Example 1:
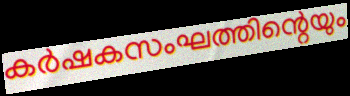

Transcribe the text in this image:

കർഷകസംഘത്തിന്റെയും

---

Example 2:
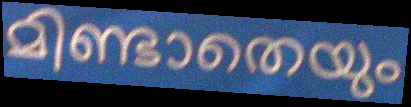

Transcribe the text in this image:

മിണ്ടാതെയും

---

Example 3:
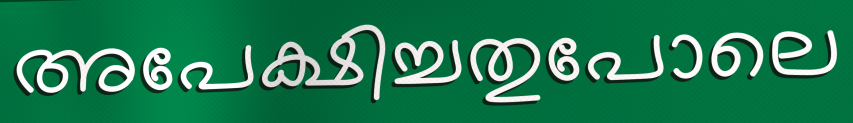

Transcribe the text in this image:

അപേക്ഷിച്ചതുപോലെ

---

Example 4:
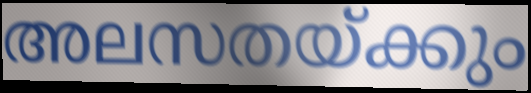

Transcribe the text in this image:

അലസതയ്ക്കും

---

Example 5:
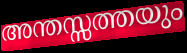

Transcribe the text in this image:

അന്തസ്സത്തയും